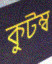
কুটম্ব